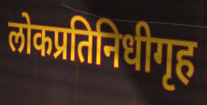
लोकप्रतिनिधीगृह